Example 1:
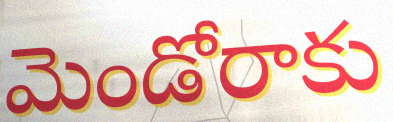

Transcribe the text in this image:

మెండోరాకు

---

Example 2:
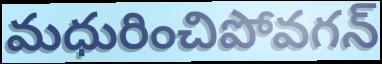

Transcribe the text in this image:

మధురించిపోవగన్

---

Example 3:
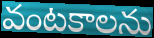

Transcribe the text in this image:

వంటకాలను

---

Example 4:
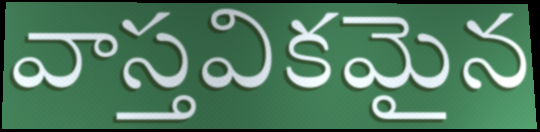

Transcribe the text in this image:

వాస్తవికమైన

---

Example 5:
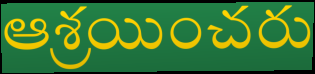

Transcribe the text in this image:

ఆశ్రయించరు